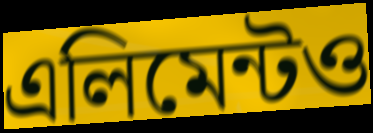
এলিমেন্টও